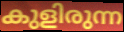
കുളിരുന്ന